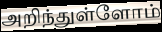
அறிந்துள்ளோம்